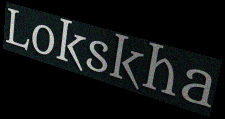
Lokskha